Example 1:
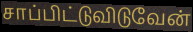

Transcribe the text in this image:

சாப்பிட்டுவிடுவேன்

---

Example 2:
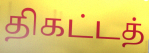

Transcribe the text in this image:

திகட்டத்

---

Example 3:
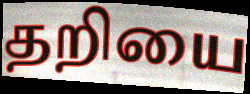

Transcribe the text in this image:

தறியை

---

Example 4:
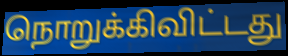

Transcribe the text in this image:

நொறுக்கிவிட்டது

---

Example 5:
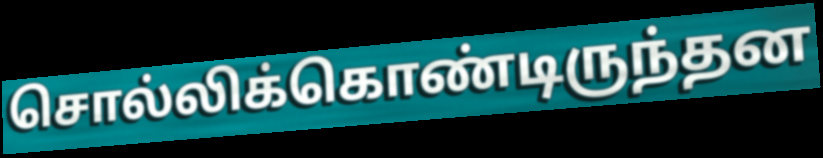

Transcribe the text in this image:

சொல்லிக்கொண்டிருந்தன